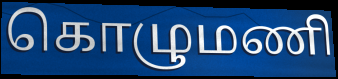
கொழுமணி